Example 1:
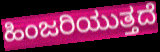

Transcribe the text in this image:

ಹಿಂಜರಿಯುತ್ತದೆ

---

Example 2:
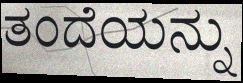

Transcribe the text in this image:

ತಂದೆಯನ್ನು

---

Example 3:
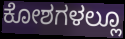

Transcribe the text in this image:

ಕೋಶಗಳಲ್ಲೂ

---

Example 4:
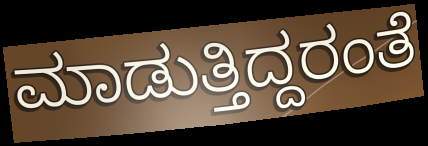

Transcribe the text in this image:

ಮಾಡುತ್ತಿದ್ದರಂತೆ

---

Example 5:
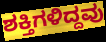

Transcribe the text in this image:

ಶಕ್ತಿಗಳಿದ್ದವು